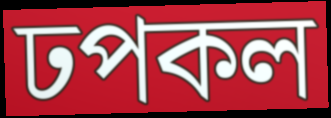
ঢপকল